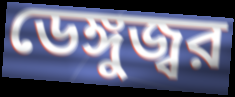
ডেঙ্গুজ্বর